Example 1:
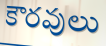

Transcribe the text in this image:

కౌరవులు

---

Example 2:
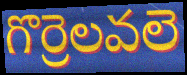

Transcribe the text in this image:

గొర్రెలవలె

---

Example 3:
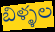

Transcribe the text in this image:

బిళ్ళల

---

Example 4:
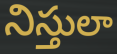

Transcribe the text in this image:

నిస్తులా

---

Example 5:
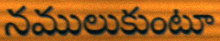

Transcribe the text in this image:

నములుకుంటూ